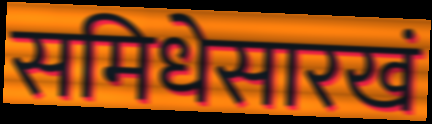
समिधेसारखं